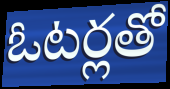
ఓటర్లతో